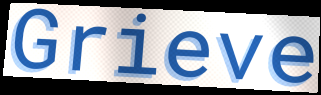
Grieve